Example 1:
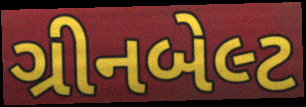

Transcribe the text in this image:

ગ્રીનબેલ્ટ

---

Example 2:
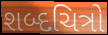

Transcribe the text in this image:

શબ્દચિત્રો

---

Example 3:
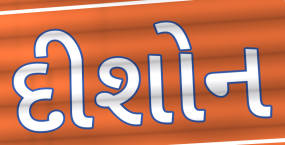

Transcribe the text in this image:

દીશોન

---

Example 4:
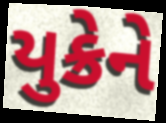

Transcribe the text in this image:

યુક્રેને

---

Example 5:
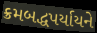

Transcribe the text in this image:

ક્રમબદ્ધપર્યાયને